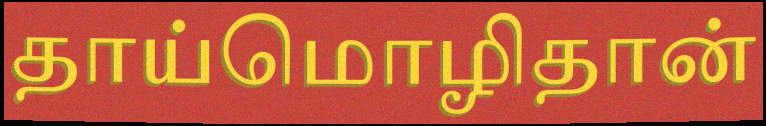
தாய்மொழிதான்